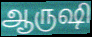
ஆருஷி